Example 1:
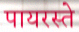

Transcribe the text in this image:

पायरस्ते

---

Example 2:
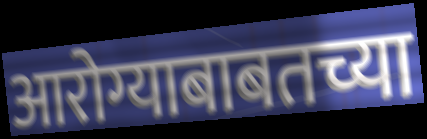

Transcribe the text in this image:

आरोग्याबाबतच्या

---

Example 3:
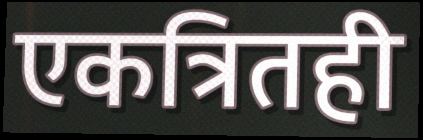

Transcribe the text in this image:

एकत्रितही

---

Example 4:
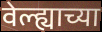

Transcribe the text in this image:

वेल्ह्याच्या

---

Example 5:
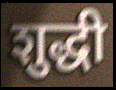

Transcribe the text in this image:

शुद्धी